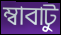
ম্বাবাটু